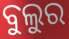
ବୁଲୁର